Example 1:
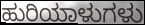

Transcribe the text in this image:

ಹುರಿಯಾಳುಗಳು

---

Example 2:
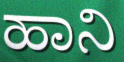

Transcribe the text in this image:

ಹಾನಿ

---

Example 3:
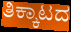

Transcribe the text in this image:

ತಿಕ್ಕಾಟದ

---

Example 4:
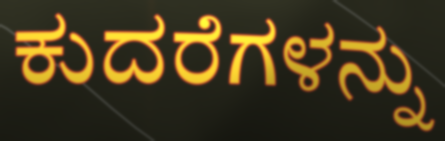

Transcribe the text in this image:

ಕುದರೆಗಳನ್ನು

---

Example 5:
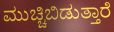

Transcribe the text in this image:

ಮುಚ್ಚಿಬಿಡುತ್ತಾರೆ